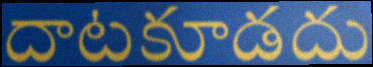
దాటకూడదు